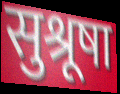
सुश्रूषा